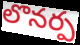
లొనర్ప